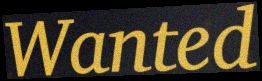
Wanted